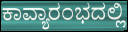
ಕಾವ್ಯಾರಂಭದಲ್ಲಿ